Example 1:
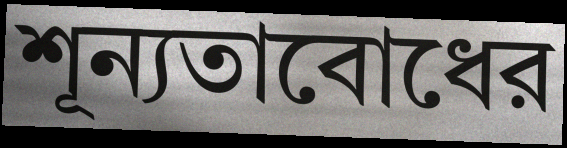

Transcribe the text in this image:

শূন্যতাবোধের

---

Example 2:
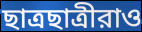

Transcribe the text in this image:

ছাত্রছাত্রীরাও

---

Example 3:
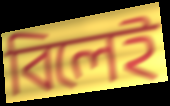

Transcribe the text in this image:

বিলেই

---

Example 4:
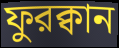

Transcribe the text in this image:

ফুরক্বান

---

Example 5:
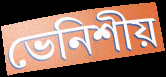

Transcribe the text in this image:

ভেনিশীয়